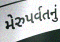
મેરુપર્વતનું